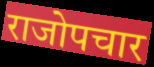
राजोपचार